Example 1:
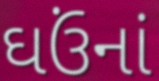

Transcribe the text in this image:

ઘઉંનાં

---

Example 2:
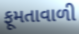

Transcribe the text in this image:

ફૂમતાવાળી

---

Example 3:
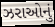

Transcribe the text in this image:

ઝરાઓનું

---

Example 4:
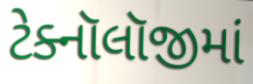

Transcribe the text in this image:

ટેક્નૉલૉજીમાં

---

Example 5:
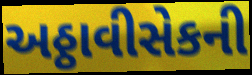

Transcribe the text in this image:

અઠ્ઠાવીસેકની